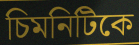
চিমনিটিকে